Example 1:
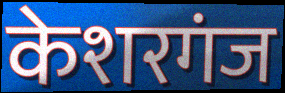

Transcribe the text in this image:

केशरगंज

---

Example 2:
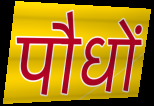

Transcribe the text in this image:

पौधों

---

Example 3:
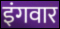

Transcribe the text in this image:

इंगवार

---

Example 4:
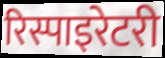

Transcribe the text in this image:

रिस्पाइरेटरी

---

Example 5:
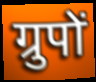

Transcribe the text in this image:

ग्रुपों